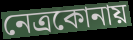
নেত্রকোনায়